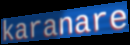
karanare